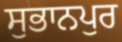
ਸੁਭਾਨਪੁਰ